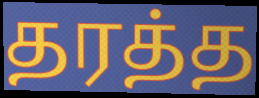
தரத்த